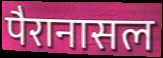
पैरानासल